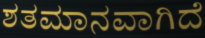
ಶತಮಾನವಾಗಿದೆ